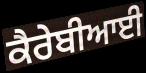
ਕੈਰੇਬੀਆਈ